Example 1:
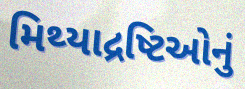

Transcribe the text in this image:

મિથ્યાદ્રષ્ટિઓનું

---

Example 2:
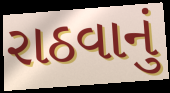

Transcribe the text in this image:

રાઠવાનું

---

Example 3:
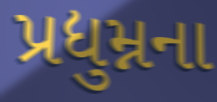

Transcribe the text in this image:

પ્રદ્યુમ્નના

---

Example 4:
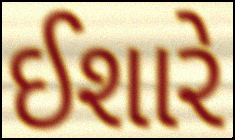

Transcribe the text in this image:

ઈશારે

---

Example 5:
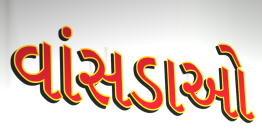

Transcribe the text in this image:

વાંસડાઓ